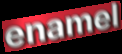
enamel